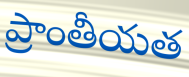
ప్రాంతీయత